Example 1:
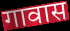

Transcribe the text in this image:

गावास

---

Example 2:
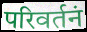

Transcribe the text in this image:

परिवर्तनं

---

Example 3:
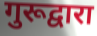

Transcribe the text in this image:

गुरूद्वारा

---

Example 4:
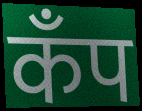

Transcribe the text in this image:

कॅंप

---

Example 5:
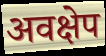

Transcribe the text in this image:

अवक्षेप